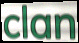
clan